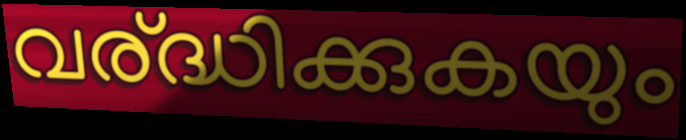
വര്ദ്ധിക്കുകയും